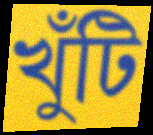
খুঁটি